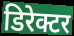
डिरेक्टर